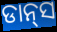
ଡାନ୍‍ସ